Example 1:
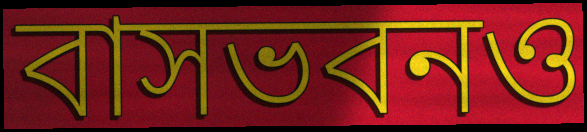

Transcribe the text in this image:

বাসভবনও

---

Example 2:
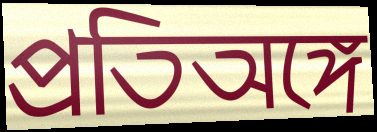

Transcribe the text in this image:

প্রতিঅঙ্গে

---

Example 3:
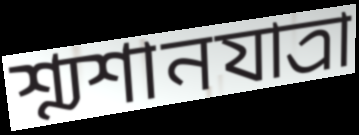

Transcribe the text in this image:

শ্মশানযাত্রা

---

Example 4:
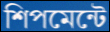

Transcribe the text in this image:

শিপমেন্টে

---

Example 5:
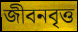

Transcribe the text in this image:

জীবনবৃত্ত